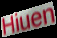
Hiuen